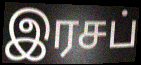
இரசப்